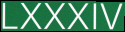
LXXXIV